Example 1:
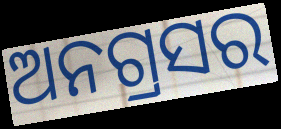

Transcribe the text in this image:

ଅନଗ୍ରସର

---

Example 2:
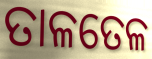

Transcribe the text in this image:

ତାଳତେଳ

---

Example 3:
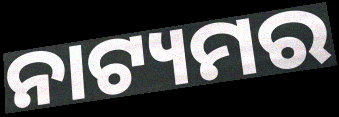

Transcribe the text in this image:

ନାଟ୍ୟମର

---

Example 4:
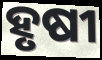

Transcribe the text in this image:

ହୃଷୀ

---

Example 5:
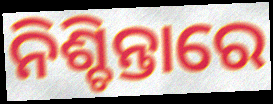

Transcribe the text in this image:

ନିଶ୍ଚିନ୍ତାରେ